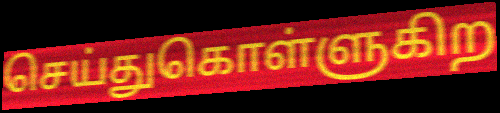
செய்துகொள்ளுகிற